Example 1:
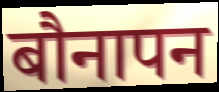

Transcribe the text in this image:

बौनापन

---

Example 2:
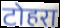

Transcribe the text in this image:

टोहरा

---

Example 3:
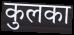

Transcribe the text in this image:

कुलका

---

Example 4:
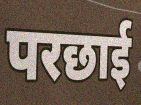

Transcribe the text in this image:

परछाई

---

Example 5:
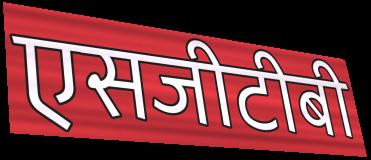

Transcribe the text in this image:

एसजीटीबी